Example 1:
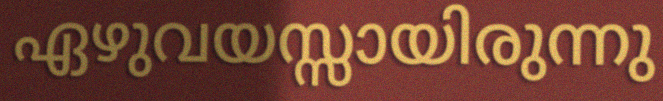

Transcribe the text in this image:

ഏഴുവയസ്സായിരുന്നു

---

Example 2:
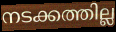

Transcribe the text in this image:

നടക്കത്തില്ല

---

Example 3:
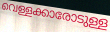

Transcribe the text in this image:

വെള്ളക്കാരോടുള്ള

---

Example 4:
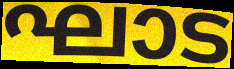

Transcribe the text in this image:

ഘാട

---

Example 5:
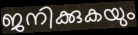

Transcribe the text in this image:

ജനിക്കുകയും